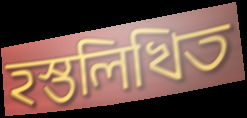
হস্তলিখিত